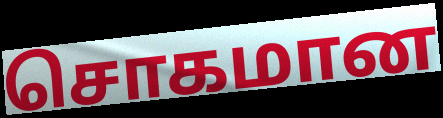
சொகமான